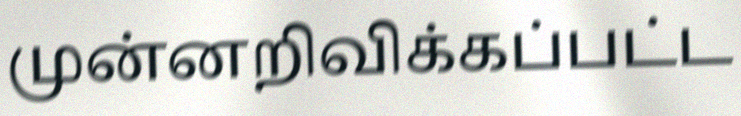
முன்னறிவிக்கப்பட்ட